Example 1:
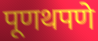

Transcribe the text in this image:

पूणथपणे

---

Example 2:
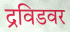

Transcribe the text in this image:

द्रविडवर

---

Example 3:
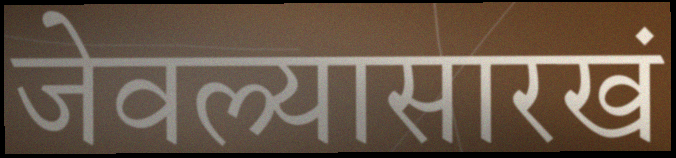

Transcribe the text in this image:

जेवल्यासारखं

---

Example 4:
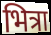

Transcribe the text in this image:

भित्रा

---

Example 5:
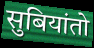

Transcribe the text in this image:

सुबियांतो